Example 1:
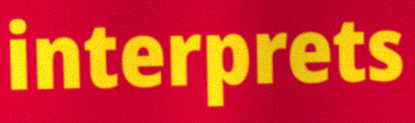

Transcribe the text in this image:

interprets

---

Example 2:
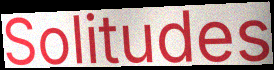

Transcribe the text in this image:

Solitudes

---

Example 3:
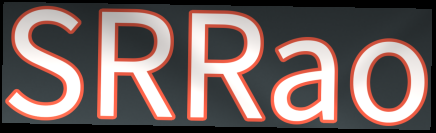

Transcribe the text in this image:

SRRao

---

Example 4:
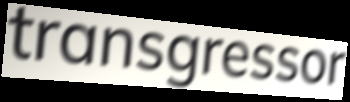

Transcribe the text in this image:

transgressor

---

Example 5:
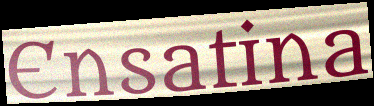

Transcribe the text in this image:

Ensatina